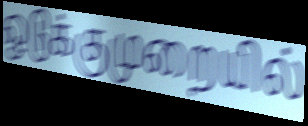
ஒடுக்குமுறையில்